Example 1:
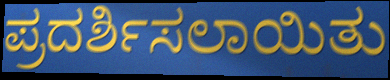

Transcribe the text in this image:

ಪ್ರದರ್ಶಿಸಲಾಯಿತು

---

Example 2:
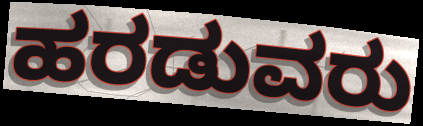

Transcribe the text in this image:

ಹರಡುವರು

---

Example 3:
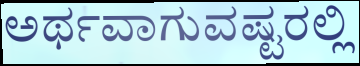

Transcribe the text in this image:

ಅರ್ಥವಾಗುವಷ್ಟರಲ್ಲಿ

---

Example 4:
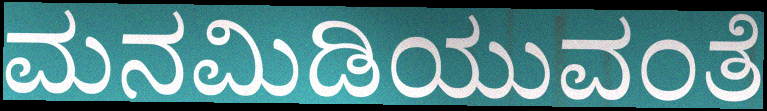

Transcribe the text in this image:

ಮನಮಿಡಿಯುವಂತೆ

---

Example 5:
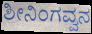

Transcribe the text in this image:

ಶೀನಿಂಗವ್ವನ